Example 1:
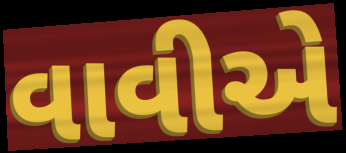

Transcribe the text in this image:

વાવીએ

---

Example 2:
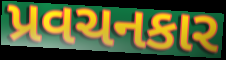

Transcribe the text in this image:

પ્રવચનકાર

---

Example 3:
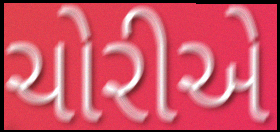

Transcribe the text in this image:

ચોરીએ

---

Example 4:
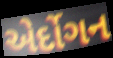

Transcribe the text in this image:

એર્દોગન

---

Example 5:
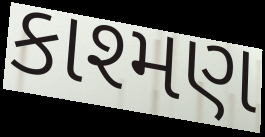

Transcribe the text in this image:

કાશ્મણ